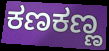
ಕಣಕಣ್ಣ